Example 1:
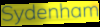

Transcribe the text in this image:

Sydenham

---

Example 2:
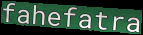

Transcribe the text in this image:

fahefatra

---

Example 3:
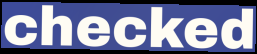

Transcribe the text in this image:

checked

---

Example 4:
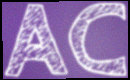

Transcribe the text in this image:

AC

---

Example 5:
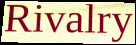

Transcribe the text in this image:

Rivalry